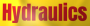
Hydraulics